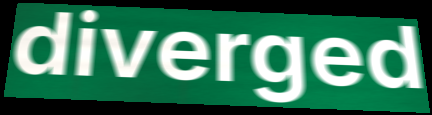
diverged